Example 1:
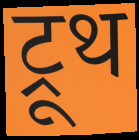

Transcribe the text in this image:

ट्रूथ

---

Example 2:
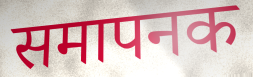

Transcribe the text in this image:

समापनक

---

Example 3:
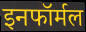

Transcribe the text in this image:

इनफॉर्मल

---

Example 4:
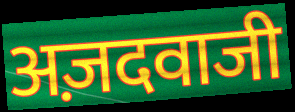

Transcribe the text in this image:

अज़दवाजी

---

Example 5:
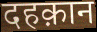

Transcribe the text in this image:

दहक़ान